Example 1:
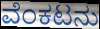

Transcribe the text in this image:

ವೆಂಕಟನು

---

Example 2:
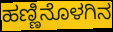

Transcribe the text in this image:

ಹಣ್ಣಿನೊಳಗಿನ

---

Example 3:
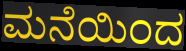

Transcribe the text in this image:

ಮನೆಯಿಂದ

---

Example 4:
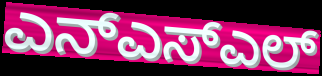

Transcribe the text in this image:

ಎನ್ಎಸ್ಎಲ್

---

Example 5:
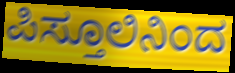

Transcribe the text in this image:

ಪಿಸ್ತೂಲಿನಿಂದ